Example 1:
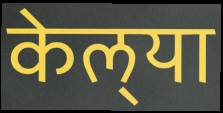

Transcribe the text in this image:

केल्या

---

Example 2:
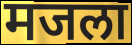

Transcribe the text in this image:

मजला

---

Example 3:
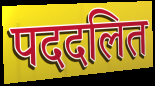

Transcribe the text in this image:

पददलित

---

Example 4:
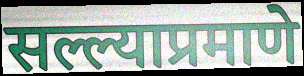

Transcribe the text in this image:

सल्ल्याप्रमाणे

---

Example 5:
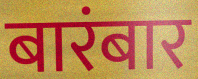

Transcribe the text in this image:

बारंबार